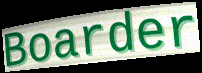
Boarder